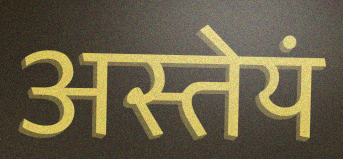
अस्तेयं